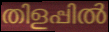
തിളപ്പിൽ